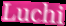
Luchi